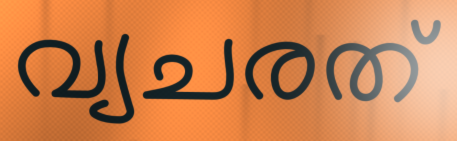
വ്യചരത്